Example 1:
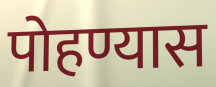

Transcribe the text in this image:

पोहण्यास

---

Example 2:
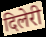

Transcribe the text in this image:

दिलेरी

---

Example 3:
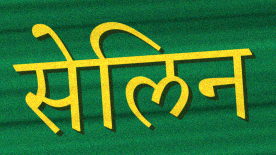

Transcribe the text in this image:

सेलिन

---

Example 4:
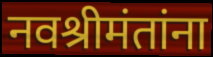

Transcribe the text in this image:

नवश्रीमंतांना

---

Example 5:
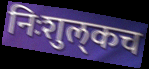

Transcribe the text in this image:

निःशुल्कच